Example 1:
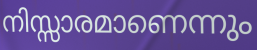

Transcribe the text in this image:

നിസ്സാരമാണെന്നും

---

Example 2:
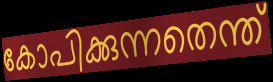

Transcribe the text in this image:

കോപിക്കുന്നതെന്ത്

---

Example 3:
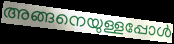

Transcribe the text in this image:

അങ്ങനെയുള്ളപ്പോൾ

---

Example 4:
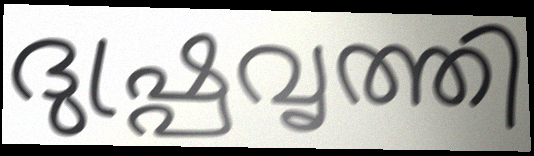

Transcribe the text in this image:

ദുഷ്പ്രവൃത്തി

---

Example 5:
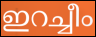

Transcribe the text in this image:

ഇറച്ചീം